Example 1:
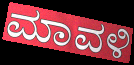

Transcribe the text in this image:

ಮಾವಳಿ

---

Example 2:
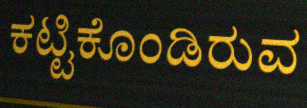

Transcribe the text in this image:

ಕಟ್ಟಿಕೊಂಡಿರುವ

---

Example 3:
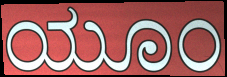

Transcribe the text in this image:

ಯೂಂ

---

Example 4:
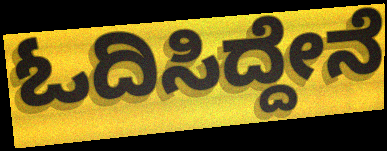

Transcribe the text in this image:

ಓದಿಸಿದ್ದೇನೆ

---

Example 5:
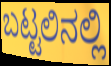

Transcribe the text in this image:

ಬಟ್ಟಲಿನಲ್ಲಿ